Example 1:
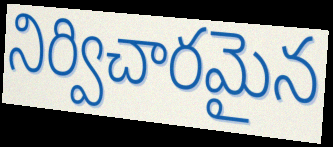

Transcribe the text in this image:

నిర్విచారమైన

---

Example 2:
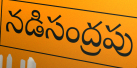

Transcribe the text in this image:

నడిసంద్రపు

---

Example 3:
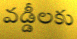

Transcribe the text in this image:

వడ్డీలకు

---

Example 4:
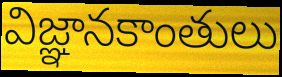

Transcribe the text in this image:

విజ్ఞానకాంతులు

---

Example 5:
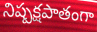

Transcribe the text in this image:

నిష్పక్షపాతంగా